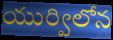
యుర్విలోన